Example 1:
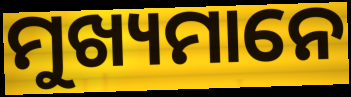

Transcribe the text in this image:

ମୁଖ୍ୟମାନେ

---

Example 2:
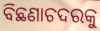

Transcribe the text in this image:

ବିଛଣାଚଦରକୁ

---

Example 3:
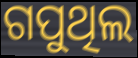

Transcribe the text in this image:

ଗପୁଥିଲ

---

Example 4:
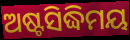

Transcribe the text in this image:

ଅଷ୍ଟସିଦ୍ଧିମୟ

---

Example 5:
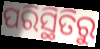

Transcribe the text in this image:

ପରିସ୍ଥିତିରୁ